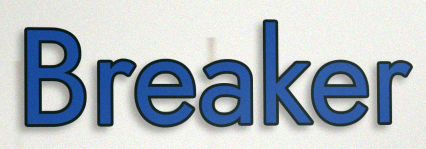
Breaker